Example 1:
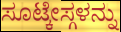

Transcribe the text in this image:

ಸೂಟ್ಕೇಸ್ಗಳನ್ನು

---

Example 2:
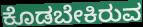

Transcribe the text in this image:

ಕೊಡಬೇಕಿರುವ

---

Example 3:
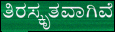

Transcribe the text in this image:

ತಿರಸ್ಕೃತವಾಗಿವೆ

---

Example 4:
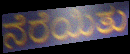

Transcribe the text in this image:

ನೆರೆಯಿತು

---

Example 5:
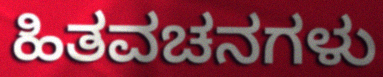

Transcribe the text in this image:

ಹಿತವಚನಗಳು